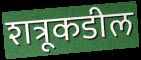
शत्रूकडील